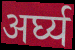
अर्घ्य